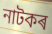
নাটকৰ